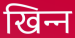
खिन्‍न